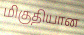
மிகுதியான